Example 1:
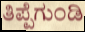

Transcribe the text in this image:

ತಿಪ್ಪೆಗುಂಡಿ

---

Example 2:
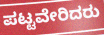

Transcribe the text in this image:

ಪಟ್ಟವೇರಿದರು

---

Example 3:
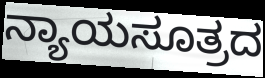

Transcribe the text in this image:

ನ್ಯಾಯಸೂತ್ರದ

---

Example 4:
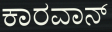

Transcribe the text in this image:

ಕಾರವಾನ್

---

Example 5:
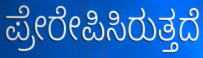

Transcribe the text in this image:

ಪ್ರೇರೇಪಿಸಿರುತ್ತದೆ